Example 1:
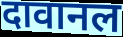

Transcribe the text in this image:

दावानल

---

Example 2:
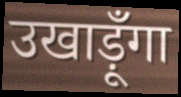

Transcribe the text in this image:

उखाड़ूँगा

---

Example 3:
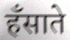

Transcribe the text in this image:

हँसाते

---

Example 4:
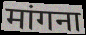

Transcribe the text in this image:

मांगना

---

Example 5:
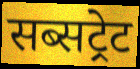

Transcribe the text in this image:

सब्सट्रेट